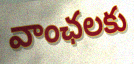
వాంఛలకు